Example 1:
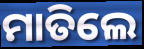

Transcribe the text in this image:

ମାତିଲେ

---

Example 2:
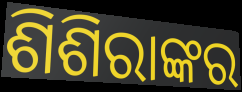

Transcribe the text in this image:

ଶିଶିରାଙ୍କର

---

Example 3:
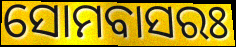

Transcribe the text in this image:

ସୋମବାସରଃ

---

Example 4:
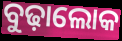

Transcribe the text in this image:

ବୁଢ଼ାଲୋକ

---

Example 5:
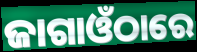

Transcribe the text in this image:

ଜାଗାଓଁଠାରେ